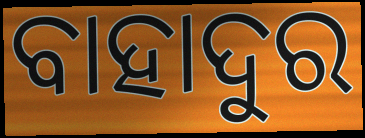
ବାହାଦୁର